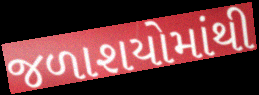
જળાશયોમાંથી